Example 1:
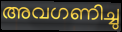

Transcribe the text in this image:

അവഗണിച്ചു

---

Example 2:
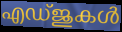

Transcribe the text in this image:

എഡ്ജുകൾ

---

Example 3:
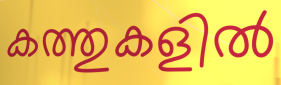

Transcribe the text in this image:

കത്തുകളിൽ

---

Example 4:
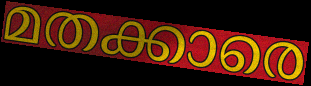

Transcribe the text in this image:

മതക്കാരെ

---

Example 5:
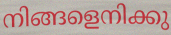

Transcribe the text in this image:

നിങ്ങളെനിക്കു